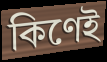
কিণেই